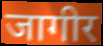
जागीर